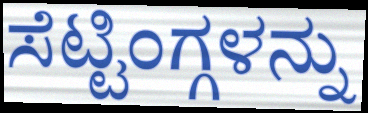
ಸೆಟ್ಟಿಂಗ್ಗಳನ್ನು